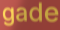
gade